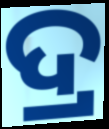
ଦ୍ର